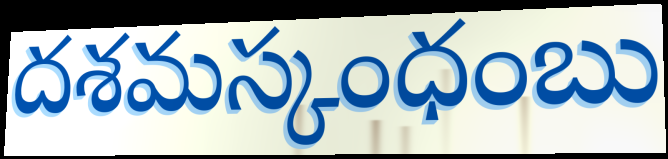
దశమస్కంధంబు